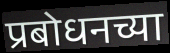
प्रबोधनच्या